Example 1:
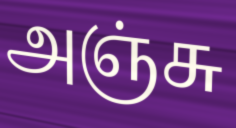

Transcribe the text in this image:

அஞ்சு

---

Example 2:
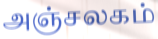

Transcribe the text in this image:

அஞ்சலகம்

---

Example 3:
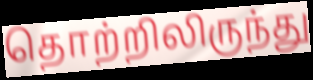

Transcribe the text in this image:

தொற்றிலிருந்து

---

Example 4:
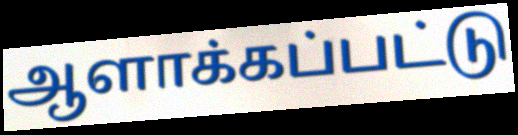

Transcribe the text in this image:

ஆளாக்கப்பட்டு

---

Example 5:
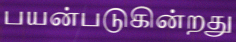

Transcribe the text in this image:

பயன்படுகின்றது